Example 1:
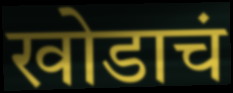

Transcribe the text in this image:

खोडाचं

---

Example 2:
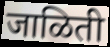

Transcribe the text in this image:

जाळिती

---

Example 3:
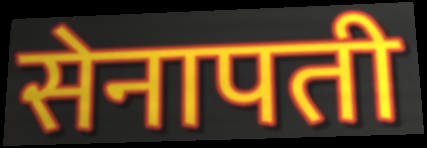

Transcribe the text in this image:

सेनापती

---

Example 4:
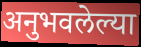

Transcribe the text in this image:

अनुभवलेल्या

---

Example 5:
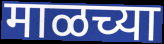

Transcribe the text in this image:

माळच्या